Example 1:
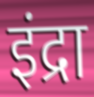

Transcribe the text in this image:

इंद्रा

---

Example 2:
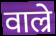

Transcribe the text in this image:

वाल्रे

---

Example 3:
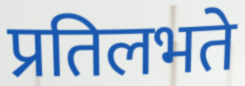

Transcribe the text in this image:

प्रतिलभते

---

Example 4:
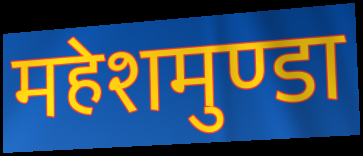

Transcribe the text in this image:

महेशमुण्डा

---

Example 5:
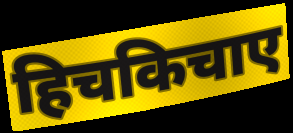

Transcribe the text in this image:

हिचकिचाए